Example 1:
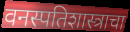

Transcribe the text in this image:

वनस्पतिशास्त्राचा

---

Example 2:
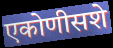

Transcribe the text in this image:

एकोणीसशे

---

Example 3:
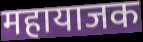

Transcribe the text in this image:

महायाजक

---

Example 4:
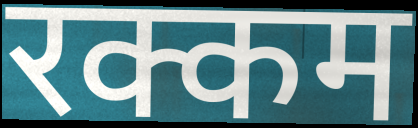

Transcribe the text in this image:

रक्कम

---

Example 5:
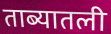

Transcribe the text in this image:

ताब्यातली